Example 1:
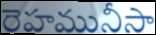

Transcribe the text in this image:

రెహమునీసా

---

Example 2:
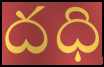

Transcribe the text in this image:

దధి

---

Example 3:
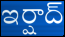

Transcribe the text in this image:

ఇర్షాద్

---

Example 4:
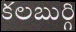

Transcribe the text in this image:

కలబుర్గి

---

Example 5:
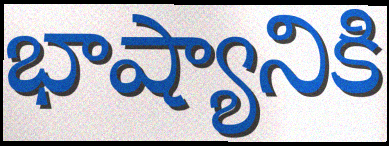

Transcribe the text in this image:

భాష్యానికి